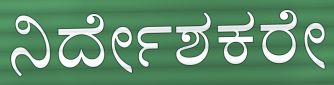
ನಿರ್ದೇಶಕರೇ